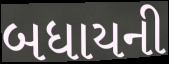
બધાયની